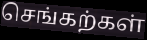
செங்கற்கள்